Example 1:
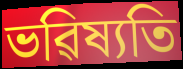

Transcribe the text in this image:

ভৱিষ্যতি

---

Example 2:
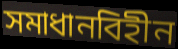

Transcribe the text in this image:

সমাধানবিহীন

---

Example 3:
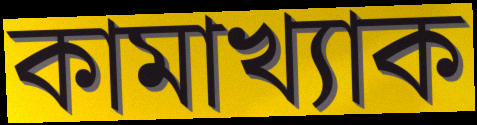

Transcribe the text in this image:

কামাখ্যাক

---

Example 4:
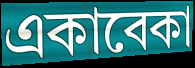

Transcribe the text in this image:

একাবেকা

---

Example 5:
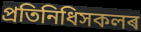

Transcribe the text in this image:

প্ৰতিনিধিসকলৰ